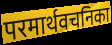
परमार्थवचनिका